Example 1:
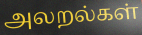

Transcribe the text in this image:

அலறல்கள்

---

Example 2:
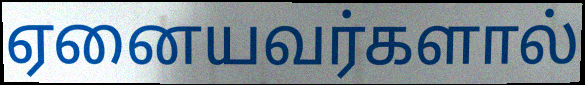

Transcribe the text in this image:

ஏனையவர்களால்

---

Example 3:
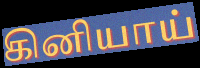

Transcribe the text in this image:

கினியாய்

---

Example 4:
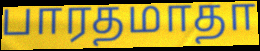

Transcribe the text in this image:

பாரதமாதா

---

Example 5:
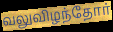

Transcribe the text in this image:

வலுவிழந்தோர்